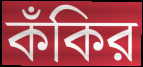
কঁকির